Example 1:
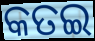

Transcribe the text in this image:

କତଇ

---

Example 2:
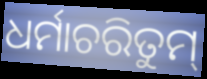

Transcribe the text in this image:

ଧର୍ମାଚରିତୁମ୍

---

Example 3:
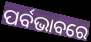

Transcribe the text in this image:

ପର୍ବଭାବରେ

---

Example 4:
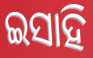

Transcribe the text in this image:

ଇସାହି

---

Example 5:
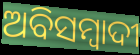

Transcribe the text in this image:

ଅବିସମ୍ବାଦୀ